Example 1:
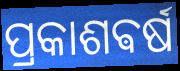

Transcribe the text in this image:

ପ୍ରକାଶଵର୍ଷ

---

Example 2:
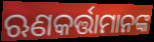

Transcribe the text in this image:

ଋଣକର୍ତ୍ତାମାନଙ୍କ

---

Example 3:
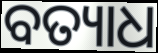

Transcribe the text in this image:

ବତ୍ୟାଧ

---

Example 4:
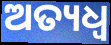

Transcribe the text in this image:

ଅତ୍ୟଧ୍ୱ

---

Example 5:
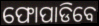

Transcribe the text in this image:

ଫୋପାଡିବେ